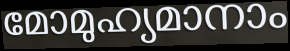
മോമുഹ്യമാനാം